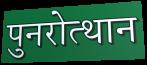
पुनरोत्थान